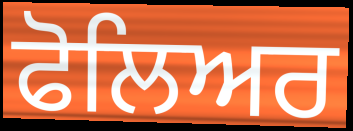
ਫੋਲਿਅਰ